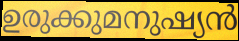
ഉരുക്കുമനുഷ്യൻ